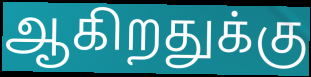
ஆகிறதுக்கு